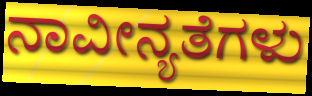
ನಾವೀನ್ಯತೆಗಳು